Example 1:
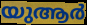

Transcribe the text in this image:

യുആർ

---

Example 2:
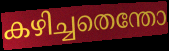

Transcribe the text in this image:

കഴിച്ചതെന്തോ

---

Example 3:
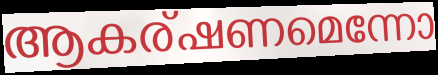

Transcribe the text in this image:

ആകര്ഷണമെന്നോ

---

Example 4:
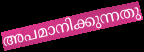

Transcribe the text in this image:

അപമാനിക്കുന്നതു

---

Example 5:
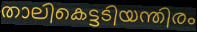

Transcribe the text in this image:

താലികെട്ടടിയന്തിരം